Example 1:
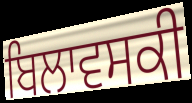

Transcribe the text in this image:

ਬਿਲਾਵਸਕੀ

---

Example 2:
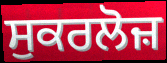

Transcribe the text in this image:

ਸੁਕਰਲੋਜ਼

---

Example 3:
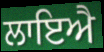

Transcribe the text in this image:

ਲਾਇਐ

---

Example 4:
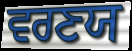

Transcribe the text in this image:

ਵਰਣਯ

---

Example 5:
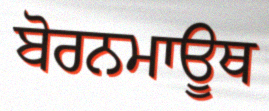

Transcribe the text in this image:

ਬੋਰਨਮਾਊਥ